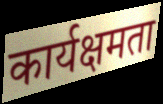
कार्यक्षमता